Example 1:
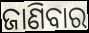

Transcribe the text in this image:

ଜାଣିବାର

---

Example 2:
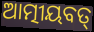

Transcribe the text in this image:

ଆତ୍ମୀୟବତ୍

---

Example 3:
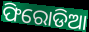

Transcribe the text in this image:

ଫିରୋଡିଆ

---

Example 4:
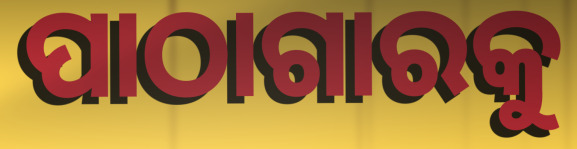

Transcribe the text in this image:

ପାଠାଗାରକୁ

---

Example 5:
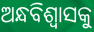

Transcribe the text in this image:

ଅନ୍ଧବିଶ୍ୱାସକୁ